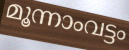
മൂന്നാംവട്ടം